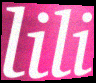
lili